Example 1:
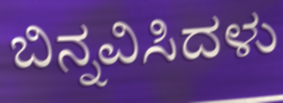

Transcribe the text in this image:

ಬಿನ್ನವಿಸಿದಳು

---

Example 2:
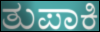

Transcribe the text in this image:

ತುಪಾಕಿ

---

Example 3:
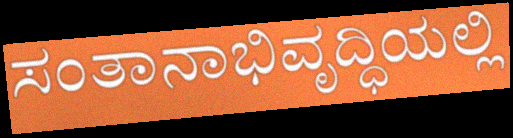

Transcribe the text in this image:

ಸಂತಾನಾಭಿವೃದ್ಧಿಯಲ್ಲಿ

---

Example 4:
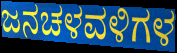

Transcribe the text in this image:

ಜನಚಳವಳಿಗಳ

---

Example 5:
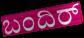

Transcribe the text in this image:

ಬಂದಿರ್